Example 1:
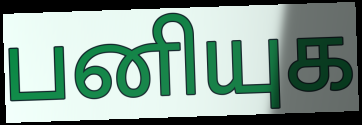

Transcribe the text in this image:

பனியுக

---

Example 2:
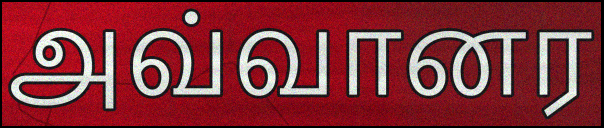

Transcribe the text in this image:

அவ்வானர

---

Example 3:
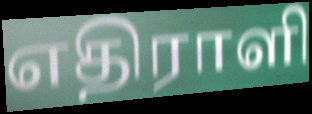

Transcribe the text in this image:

எதிராளி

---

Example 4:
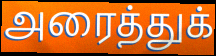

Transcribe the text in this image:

அரைத்துக்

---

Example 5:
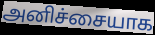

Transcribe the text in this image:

அனிச்சையாக